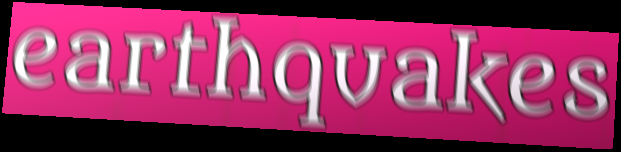
earthquakes